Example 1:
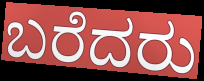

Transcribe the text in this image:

ಬರೆದರು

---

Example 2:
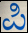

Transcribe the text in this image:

ಪಿ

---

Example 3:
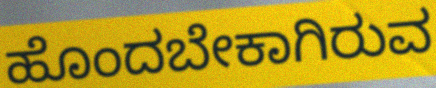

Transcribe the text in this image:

ಹೊಂದಬೇಕಾಗಿರುವ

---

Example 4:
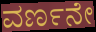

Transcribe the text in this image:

ವರ್ಣನೇ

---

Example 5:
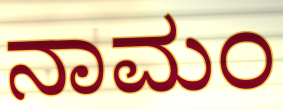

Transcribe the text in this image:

ನಾಮಂ